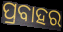
ପ୍ରବାହର